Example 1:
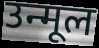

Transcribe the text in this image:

उन्मूल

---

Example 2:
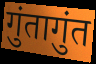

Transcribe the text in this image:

गुंतागुंत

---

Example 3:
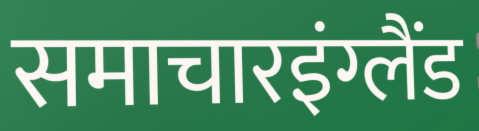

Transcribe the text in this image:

समाचारइंग्लैंड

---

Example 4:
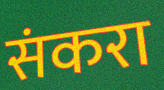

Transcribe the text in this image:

संकरा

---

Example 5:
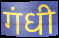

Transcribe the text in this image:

गंधी